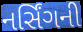
નર્સિંગની